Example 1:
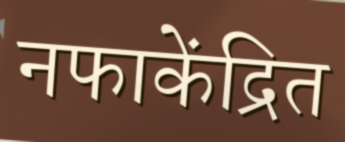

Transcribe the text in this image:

नफाकेंद्रित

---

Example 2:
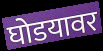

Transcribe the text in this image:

घोडयावर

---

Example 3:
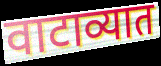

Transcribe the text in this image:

वाटाव्यात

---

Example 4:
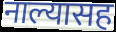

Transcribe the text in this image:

नाल्यासह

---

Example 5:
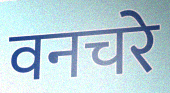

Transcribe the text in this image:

वनचरे